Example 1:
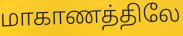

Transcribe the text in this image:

மாகாணத்திலே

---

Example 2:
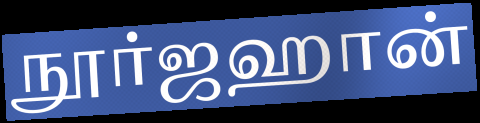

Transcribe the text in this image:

நூர்ஜஹான்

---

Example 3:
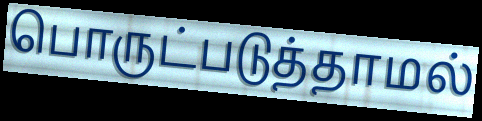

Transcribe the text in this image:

பொருட்படுத்தாமல்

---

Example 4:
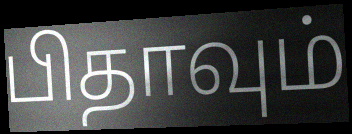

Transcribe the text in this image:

பிதாவும்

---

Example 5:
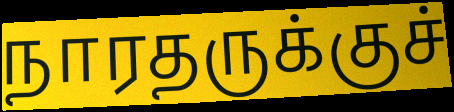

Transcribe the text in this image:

நாரதருக்குச்